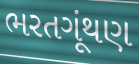
ભરતગૂંથણ